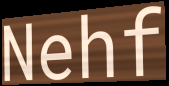
Nehf